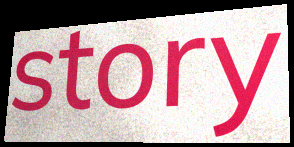
story